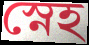
স্নেহ